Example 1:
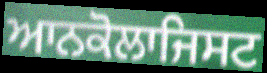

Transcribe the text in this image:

ਆਨਕੋਲਾਜਿਸਟ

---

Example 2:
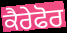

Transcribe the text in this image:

ਕੈਰੇਫੋਰ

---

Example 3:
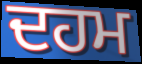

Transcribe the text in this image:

ਦਹਮ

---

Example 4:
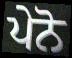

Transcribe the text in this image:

ਪੇਨੋ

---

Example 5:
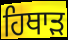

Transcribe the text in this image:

ਹਿਥਾੜ